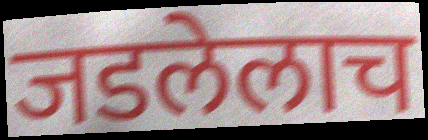
जडलेलाच